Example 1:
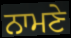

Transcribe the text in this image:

ਨਾਮਣੇ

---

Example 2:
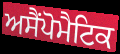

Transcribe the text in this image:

ਅਸੈਂਪੋਮੈਟਿਕ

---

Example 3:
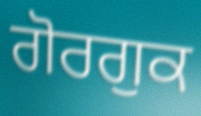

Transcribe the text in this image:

ਗੋਰਗੁਕ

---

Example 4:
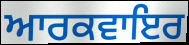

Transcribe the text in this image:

ਆਰਕਵਾਇਰ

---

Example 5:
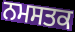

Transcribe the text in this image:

ਨਮਸਤਕ